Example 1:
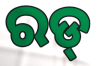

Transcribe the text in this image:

ରଡ୍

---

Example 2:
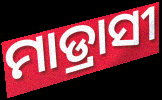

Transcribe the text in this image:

ମାଡ୍ରାସୀ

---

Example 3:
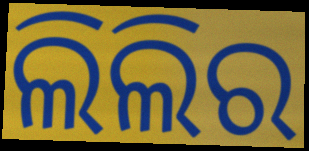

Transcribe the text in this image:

ଲିଲିର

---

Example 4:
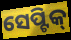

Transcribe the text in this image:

ସେପ୍ଟିକ୍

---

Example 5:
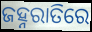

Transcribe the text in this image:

ଜହ୍ନରାତିରେ